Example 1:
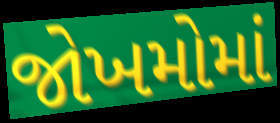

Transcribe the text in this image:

જોખમોમાં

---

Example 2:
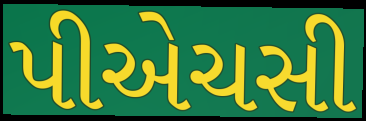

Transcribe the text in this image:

પીએચસી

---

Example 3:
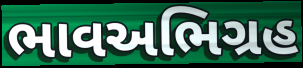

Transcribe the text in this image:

ભાવઅભિગ્રહ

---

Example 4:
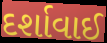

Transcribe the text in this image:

દર્શાવાઈ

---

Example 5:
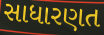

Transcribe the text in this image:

સાધારણત